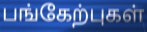
பங்கேற்புகள்